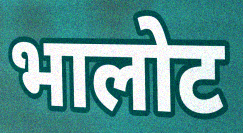
भालोट